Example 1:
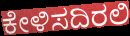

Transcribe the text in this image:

ಕೇಳಿಸದಿರಲಿ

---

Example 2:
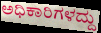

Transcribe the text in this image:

ಅಧಿಕಾರಿಗಳದ್ದು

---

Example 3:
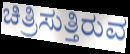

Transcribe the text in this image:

ಚಿತ್ರಿಸುತ್ತಿರುವ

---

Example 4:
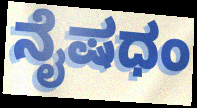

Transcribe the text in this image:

ನೈಷಧಂ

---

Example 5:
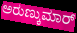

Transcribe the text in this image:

ಅರುಣ್ಕುಮಾರ್